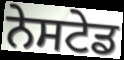
ਨੇਸਟੇਡ